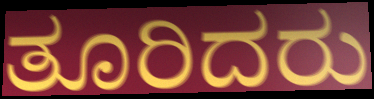
ತೂರಿದರು